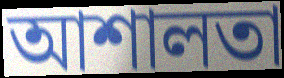
আশালতা